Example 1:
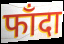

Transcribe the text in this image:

फाँदा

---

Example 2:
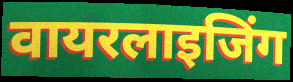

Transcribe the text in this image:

वायरलाइजिंग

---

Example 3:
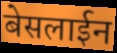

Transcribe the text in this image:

बेसलाईन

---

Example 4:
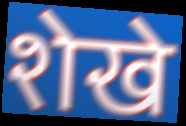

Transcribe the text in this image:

शेखे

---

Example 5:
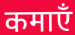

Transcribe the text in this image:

कमाएँ